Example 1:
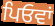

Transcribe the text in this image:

ਪਿਓਵਾਂ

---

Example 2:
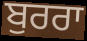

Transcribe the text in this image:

ਬੁਰਰਾ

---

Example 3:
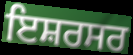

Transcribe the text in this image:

ਇਸ਼ਰਸਰ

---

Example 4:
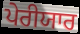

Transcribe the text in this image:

ਪੇਰੀਯਾਰ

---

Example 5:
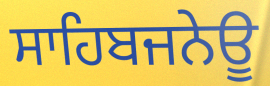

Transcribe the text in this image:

ਸਾਹਿਬਜਨੇਊ